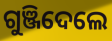
ଗୁଞ୍ଜିଦେଲେ